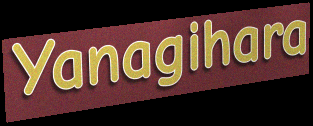
Yanagihara